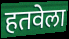
हतवेला